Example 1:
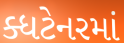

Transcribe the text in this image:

ક્ધટેનરમાં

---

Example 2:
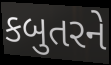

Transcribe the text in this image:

કબુતરને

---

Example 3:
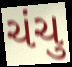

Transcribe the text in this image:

ચંચુ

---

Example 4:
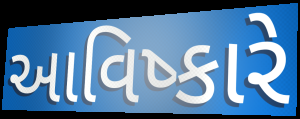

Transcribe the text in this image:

આવિષ્કારે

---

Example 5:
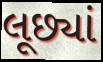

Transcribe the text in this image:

લૂછ્યાં